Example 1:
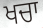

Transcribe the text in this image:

ਖਚਾ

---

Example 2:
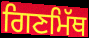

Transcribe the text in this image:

ਗਿਣਮਿੱਥ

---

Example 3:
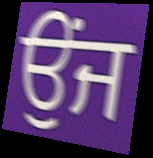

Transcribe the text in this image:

ਉੰਜ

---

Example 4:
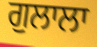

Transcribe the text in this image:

ਗੁਲਾਲਾ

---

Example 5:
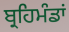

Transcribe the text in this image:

ਬ੍ਰਹਿਮੰਡਾਂ